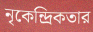
নৃকেন্দ্রিকতার